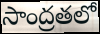
సాంద్రతలో